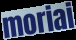
moriai